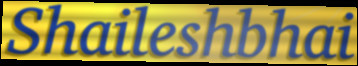
Shaileshbhai